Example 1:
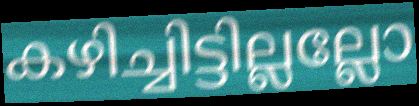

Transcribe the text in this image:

കഴിച്ചിട്ടില്ലല്ലോ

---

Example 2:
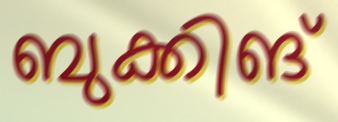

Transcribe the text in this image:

ബുക്കിങ്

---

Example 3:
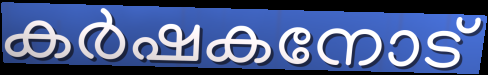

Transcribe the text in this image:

കർഷകനോട്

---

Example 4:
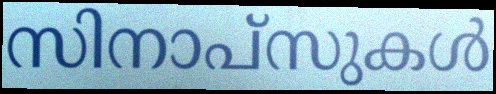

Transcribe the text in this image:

സിനാപ്സുകൾ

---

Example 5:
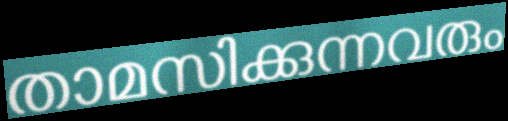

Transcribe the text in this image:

താമസിക്കുന്നവരും